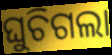
ଘୁଚିଗଲା